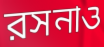
রসনাও